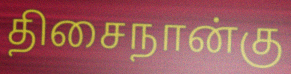
திசைநான்கு